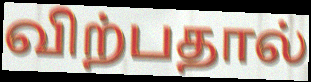
விற்பதால்